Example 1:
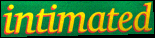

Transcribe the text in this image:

intimated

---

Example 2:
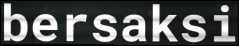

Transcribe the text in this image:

bersaksi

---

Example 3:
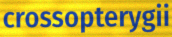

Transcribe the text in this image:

crossopterygii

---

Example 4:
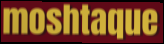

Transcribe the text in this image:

moshtaque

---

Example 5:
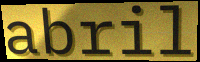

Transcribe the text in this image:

abril